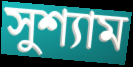
সুশ্যাম